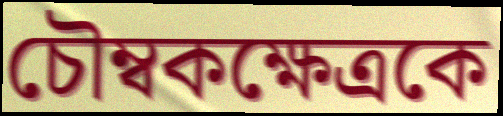
চৌম্বকক্ষেত্রকে